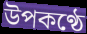
উপকণ্ঠে